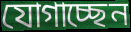
যোগাচ্ছেন